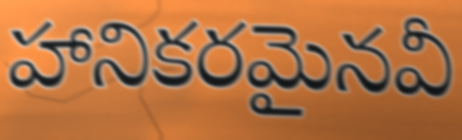
హానికరమైనవీ